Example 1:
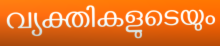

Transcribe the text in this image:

വ്യക്തികളുടെയും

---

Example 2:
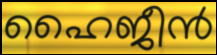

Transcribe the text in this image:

ഹൈജീൻ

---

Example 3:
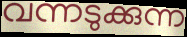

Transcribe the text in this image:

വന്നടുക്കുന്ന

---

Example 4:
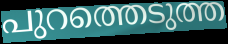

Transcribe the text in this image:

പുറത്തെടുത്ത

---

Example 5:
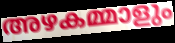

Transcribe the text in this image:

അഴകമ്മാളും